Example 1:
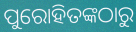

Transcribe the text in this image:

ପୁରୋହିତଙ୍କଠାରୁ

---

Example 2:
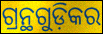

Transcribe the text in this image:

ଗ୍ରନ୍ଥଗୁଡ଼ିକର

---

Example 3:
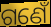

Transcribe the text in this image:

ଗଣେଁ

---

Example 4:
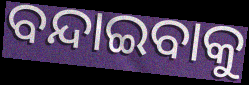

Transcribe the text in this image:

ବନ୍ଦାଇବାକୁ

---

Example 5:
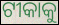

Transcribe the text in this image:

ଟୀକାକୁ